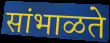
सांभाळते